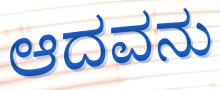
ಆದವನು